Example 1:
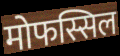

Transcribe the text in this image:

मोफस्सिल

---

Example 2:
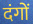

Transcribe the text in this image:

दंगों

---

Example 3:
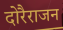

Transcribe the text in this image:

दोरैराजन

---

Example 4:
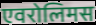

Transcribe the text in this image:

एवरोलिमस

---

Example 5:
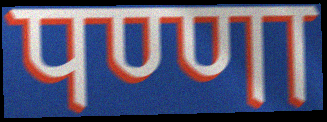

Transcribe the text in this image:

पण्णा